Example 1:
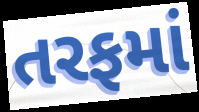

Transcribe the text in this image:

તરફમાં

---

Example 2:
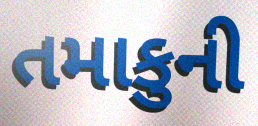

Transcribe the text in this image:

તમાકુની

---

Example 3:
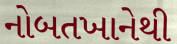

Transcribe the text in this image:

નોબતખાનેથી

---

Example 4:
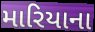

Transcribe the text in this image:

મારિયાના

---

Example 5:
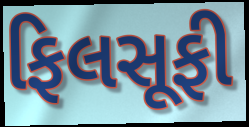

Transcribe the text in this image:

ફિલસૂફી